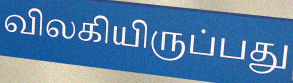
விலகியிருப்பது